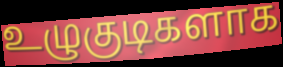
உழுகுடிகளாக